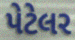
પેટેલર